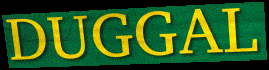
DUGGAL